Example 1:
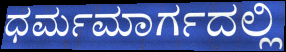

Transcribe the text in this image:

ಧರ್ಮಮಾರ್ಗದಲ್ಲಿ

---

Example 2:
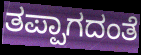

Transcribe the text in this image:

ತಪ್ಪಾಗದಂತೆ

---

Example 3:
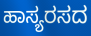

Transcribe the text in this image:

ಹಾಸ್ಯರಸದ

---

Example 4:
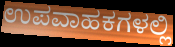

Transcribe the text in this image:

ಉಪವಾಹಕಗಳಲ್ಲಿ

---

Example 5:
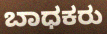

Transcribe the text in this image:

ಬಾಧಕರು